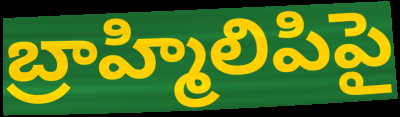
బ్రాహ్మిలిపిపై